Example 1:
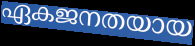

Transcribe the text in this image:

ഏകജനതയായ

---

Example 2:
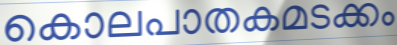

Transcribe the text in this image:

കൊലപാതകമടക്കം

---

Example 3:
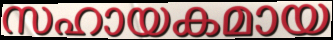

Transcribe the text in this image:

സഹായകമായ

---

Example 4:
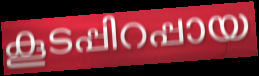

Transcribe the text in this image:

കൂടപ്പിറപ്പായ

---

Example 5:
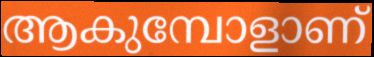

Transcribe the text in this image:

ആകുമ്പോളാണ്